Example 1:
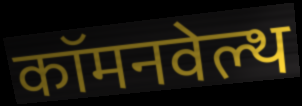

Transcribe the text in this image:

कॉमनवेल्थ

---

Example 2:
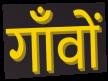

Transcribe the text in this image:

गाँवों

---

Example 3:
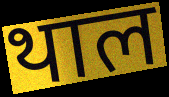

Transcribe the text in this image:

थाल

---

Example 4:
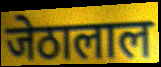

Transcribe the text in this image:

जेठालाल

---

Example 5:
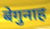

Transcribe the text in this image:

बेगुनाह